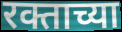
रक्ताच्या